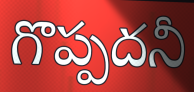
గొప్పదనీ